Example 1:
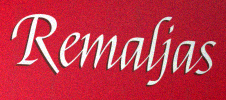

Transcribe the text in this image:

Remaljas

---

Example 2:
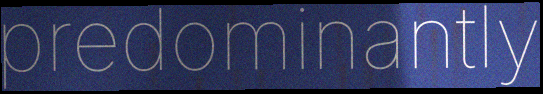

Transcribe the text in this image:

predominantly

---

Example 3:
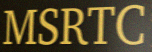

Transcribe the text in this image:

MSRTC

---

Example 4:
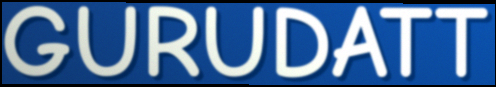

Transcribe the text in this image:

GURUDATT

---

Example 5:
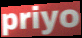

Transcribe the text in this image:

priyo